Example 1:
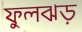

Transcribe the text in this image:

ফুলঝড়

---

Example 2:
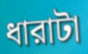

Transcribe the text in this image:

ধারাটা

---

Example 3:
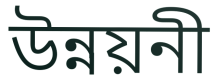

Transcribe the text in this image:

উন্নয়নী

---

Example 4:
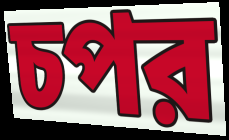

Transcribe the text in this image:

চপর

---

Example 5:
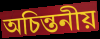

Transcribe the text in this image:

অচিন্তনীয়